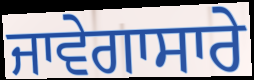
ਜਾਵੇਗਾਸਾਰੇ